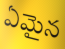
ఏమైన